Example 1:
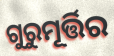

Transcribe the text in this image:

ଗୁରୁମୂର୍ତ୍ତିର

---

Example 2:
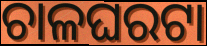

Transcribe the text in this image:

ଚାଳଘରଟା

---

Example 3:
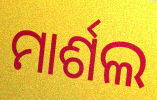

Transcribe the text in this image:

ମାର୍ଶଲ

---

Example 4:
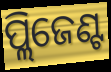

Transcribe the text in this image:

ପ୍ଲିଜେଣ୍ଟ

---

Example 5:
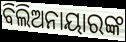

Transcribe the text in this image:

ବିଲିଅନାୟାରଙ୍କ